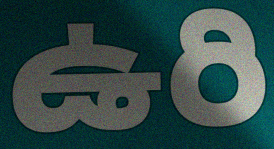
ఉరి